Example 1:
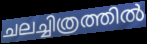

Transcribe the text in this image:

ചലച്ചിത്രത്തിൽ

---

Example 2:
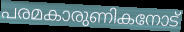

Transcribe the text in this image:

പരമകാരുണികനോട്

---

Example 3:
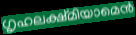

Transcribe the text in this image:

ഗൃഹലക്ഷ്മിയാമെൻ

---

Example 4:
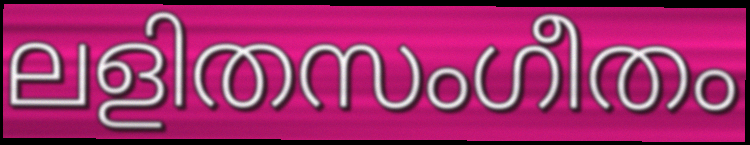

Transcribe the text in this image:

ലളിതസംഗീതം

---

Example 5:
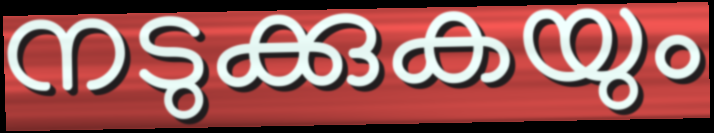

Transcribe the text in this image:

നടുക്കുകയും